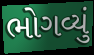
ભોગવ્યું